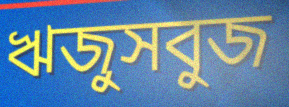
ঋজুসবুজ